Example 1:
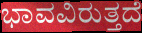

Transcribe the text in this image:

ಭಾವವಿರುತ್ತದೆ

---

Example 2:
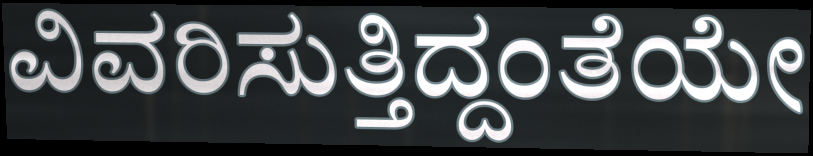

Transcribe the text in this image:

ವಿವರಿಸುತ್ತಿದ್ದಂತೆಯೇ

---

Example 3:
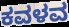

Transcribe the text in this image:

ಕವಳವ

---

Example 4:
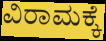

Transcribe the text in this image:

ವಿರಾಮಕ್ಕೆ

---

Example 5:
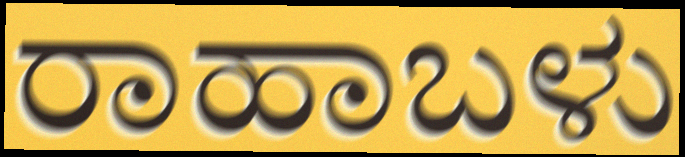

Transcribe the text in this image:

ರಾಹಾಬಳು